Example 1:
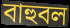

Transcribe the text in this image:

বাহুবল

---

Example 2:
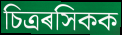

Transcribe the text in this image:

চিত্ৰৰসিকক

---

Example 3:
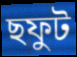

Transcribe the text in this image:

ছফুট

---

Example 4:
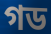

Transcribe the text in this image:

গড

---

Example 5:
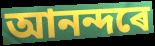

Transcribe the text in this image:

আনন্দৰে